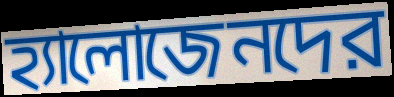
হ্যালোজেনদের